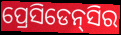
ପ୍ରେସିଡେନ୍‌ସିର